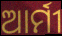
ଆର୍ମୀ